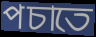
পচাতে